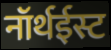
नॉर्थईस्ट